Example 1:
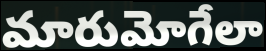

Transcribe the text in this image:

మారుమోగేలా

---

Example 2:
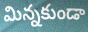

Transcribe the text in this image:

మిన్నకుండా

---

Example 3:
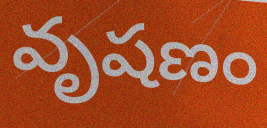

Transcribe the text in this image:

వృషణం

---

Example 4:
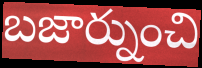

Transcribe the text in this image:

బజార్నుంచి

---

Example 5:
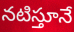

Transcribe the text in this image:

నటిస్తూనే